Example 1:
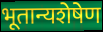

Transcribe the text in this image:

भूतान्यशेषेण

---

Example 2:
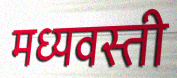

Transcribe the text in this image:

मध्यवस्ती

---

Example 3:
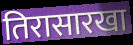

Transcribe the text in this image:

तिरासारखा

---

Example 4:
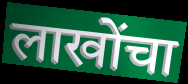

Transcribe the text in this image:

लाखोंचा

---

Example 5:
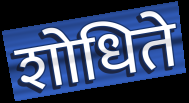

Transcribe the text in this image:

शोधिते